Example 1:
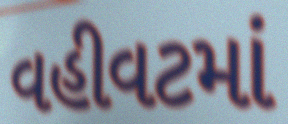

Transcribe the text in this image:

વહીવટમાં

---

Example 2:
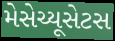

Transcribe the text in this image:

મેસેચ્યૂસેટસ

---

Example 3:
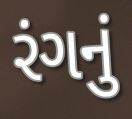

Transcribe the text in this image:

રંગનું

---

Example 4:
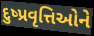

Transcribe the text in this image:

દુષ્પ્રવૃત્તિઓને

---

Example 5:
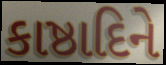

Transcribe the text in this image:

કાષ્ઠાદિને